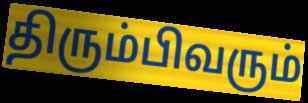
திரும்பிவரும்